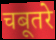
चबूतरे